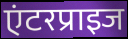
एंटरप्राइज